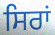
ਸਿਰਾਂ